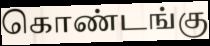
கொண்டங்கு